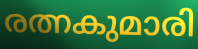
രത്നകുമാരി